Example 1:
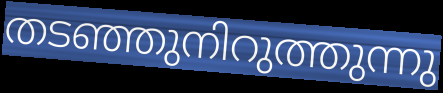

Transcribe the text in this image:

തടഞ്ഞുനിറുത്തുന്നു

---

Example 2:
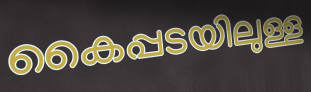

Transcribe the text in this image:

കൈപ്പടയിലുള്ള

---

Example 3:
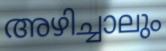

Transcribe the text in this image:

അഴിച്ചാലും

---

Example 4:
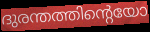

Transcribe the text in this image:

ദുരന്തത്തിന്റെയോ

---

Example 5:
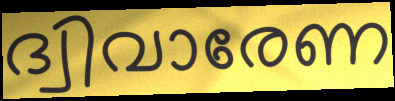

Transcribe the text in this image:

ദ്വിവാരേണ